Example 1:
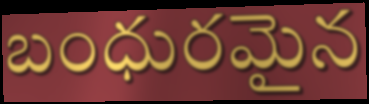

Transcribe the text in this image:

బంధురమైన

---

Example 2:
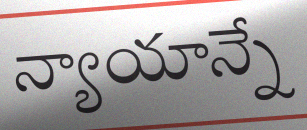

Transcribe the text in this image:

న్యాయాన్నే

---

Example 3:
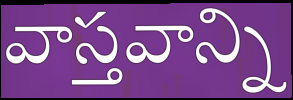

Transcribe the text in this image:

వాస్తవాన్ని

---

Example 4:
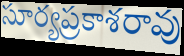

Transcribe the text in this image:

సూర్యప్రకాశరావు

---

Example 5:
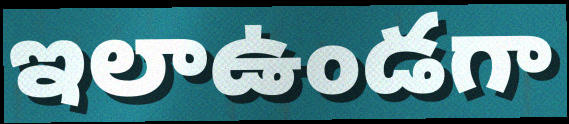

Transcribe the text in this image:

ఇలాఉండగా